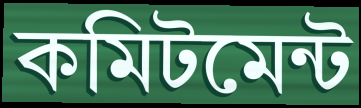
কমিটমেন্ট